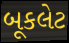
બૂકલેટ